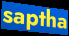
saptha